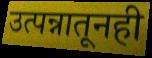
उत्पन्नातूनही